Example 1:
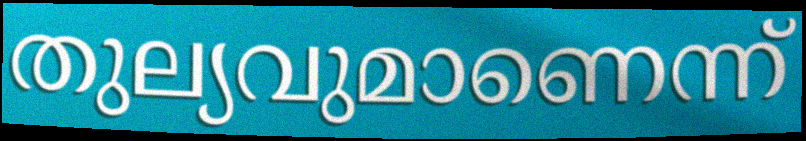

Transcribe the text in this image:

തുല്യവുമാണെന്ന്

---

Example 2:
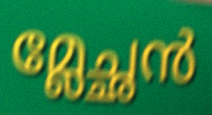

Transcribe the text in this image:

മ്ലേച്ഛൻ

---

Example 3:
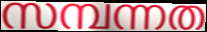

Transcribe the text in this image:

സമ്പന്നത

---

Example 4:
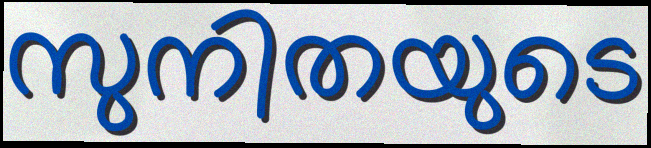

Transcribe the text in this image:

സുനിതയുടെ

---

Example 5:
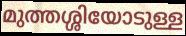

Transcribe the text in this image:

മുത്തശ്ശിയോടുള്ള